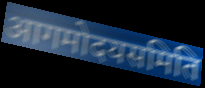
आगमोदयसमिति